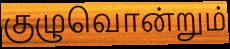
குழுவொன்றும்